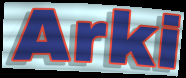
Arki